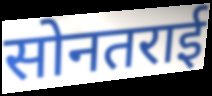
सोनतराई